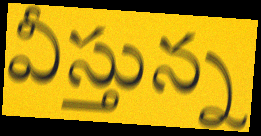
వీస్తున్న